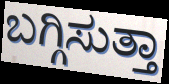
ಬಗ್ಗಿಸುತ್ತಾ